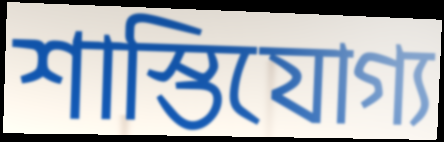
শাস্তিযোগ্য